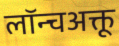
लॉन्चअक्तू